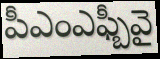
పీఎంఎఫ్బీవై